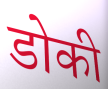
डोकी